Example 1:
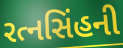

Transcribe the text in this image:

રત્નસિંહની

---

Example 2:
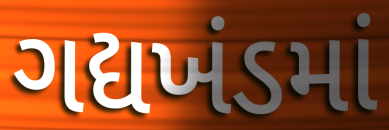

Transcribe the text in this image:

ગદ્યખંડમાં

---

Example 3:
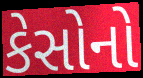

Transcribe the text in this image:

કેસોનો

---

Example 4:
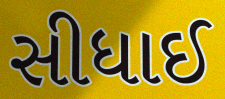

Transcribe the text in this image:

સીધાઈ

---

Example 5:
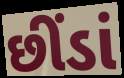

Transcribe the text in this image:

છીંડાં